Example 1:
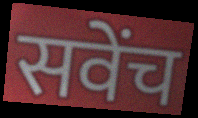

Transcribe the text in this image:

सवेंच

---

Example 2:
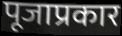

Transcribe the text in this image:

पूजाप्रकार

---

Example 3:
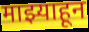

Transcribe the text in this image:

माझ्याहून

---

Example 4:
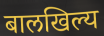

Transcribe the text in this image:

बालखिल्य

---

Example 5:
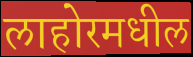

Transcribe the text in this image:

लाहोरमधील